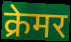
क्रेमर